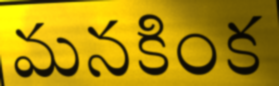
మనకింక